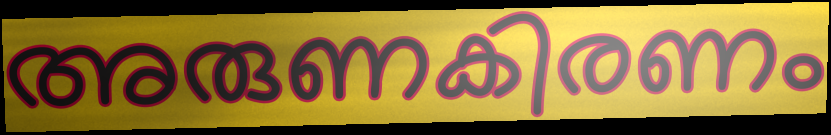
അരുണകിരണം